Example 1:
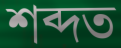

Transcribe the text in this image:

শব্দত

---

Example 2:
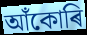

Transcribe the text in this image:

আঁকোৰি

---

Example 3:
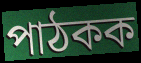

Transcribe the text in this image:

পাঠকক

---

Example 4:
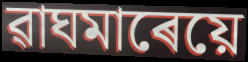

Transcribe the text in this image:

ৱাঘমাৰেয়ে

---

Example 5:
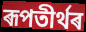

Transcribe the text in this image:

ৰূপতীৰ্থৰ